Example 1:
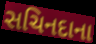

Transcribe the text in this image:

સચિનદાના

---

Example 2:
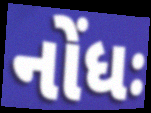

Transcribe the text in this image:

નોંધઃ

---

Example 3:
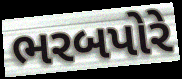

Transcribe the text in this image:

ભરબપોરે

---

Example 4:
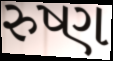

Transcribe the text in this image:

રુષ્ણ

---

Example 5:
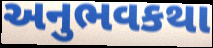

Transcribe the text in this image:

અનુભવકથા